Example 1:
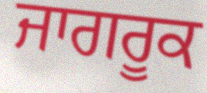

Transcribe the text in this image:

ਜਾਗਰੂਕ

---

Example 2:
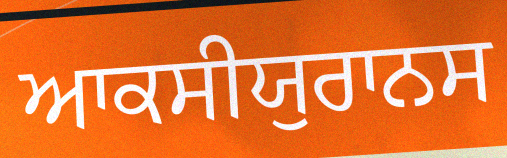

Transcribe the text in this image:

ਆਕਸੀਯੁਰਾਨਸ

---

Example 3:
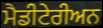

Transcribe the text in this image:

ਮੈਡੀਟੇਰੀਅਨ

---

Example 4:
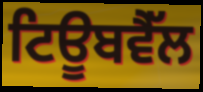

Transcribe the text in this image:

ਟਿਊਬਵੈੱਲ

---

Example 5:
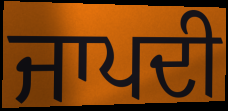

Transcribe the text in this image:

ਜਾਪਦੀ